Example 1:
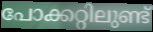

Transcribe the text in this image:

പോക്കറ്റിലുണ്ട്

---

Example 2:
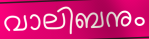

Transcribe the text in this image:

വാലിബനും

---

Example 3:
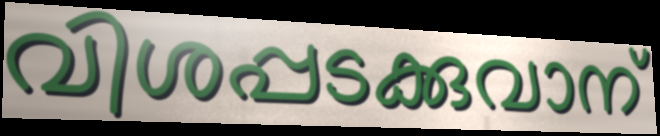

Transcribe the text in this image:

വിശപ്പടക്കുവാന്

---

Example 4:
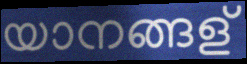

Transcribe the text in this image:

യാനങ്ങള്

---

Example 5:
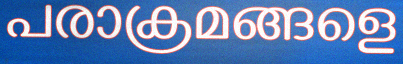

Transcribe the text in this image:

പരാക്രമങ്ങളെ